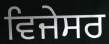
ਵਿਜੇਸਰ